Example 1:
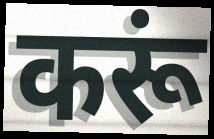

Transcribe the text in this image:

करूं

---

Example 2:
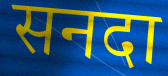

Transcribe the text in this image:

सनदा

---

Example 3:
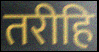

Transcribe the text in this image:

तरीहि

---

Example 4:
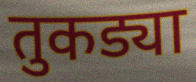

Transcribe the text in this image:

तुकड्या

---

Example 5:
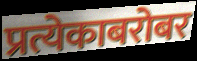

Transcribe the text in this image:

प्रत्येकाबरोबर